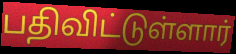
பதிவிட்டுள்ளார்